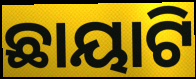
ଛାୟାଟି